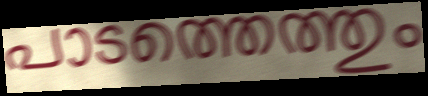
പാടത്തെത്തും